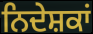
ਨਿਦੇਸ਼ਕਾਂ